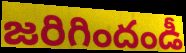
జరిగిందండీ